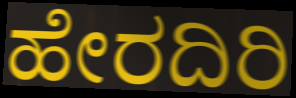
ಹೇರದಿರಿ